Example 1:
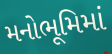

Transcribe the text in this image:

મનોભૂમિમાં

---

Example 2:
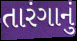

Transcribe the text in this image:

તારંગાનું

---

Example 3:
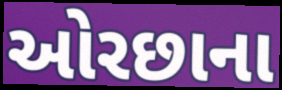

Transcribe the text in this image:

ઓરછાના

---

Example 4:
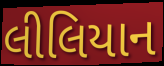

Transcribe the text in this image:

લીલિયાન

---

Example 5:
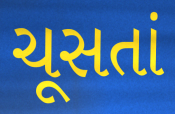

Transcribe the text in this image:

ચૂસતાં